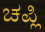
ಚಪ್ಲಿ